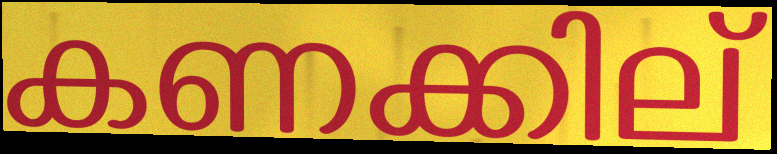
കണക്കില്